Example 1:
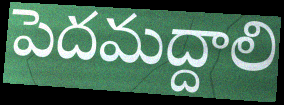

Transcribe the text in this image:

పెదమద్దాలి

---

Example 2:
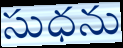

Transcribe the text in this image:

సుధను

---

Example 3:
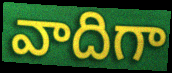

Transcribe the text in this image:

వాదిగా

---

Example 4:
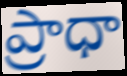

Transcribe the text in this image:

ప్రాధా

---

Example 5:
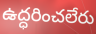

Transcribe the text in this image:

ఉద్ధరించలేరు